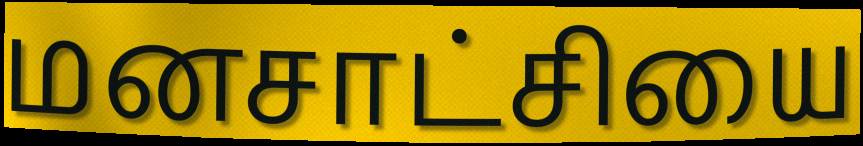
மனசாட்சியை